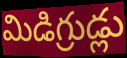
మిడిగ్రుడ్లు